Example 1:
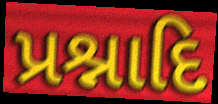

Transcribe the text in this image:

પ્રશ્નાદિ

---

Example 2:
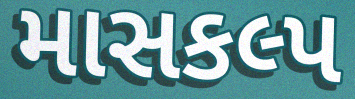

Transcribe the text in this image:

માસકલ્પ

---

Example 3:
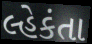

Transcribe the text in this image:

લ્હેકંતા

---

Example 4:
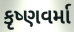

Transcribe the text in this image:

કૃષ્ણવર્મા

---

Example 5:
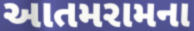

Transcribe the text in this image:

આતમરામના